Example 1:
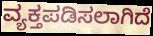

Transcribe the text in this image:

ವ್ಯಕ್ತಪಡಿಸಲಾಗಿದೆ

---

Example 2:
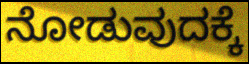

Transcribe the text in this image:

ನೋಡುವುದಕ್ಕೆ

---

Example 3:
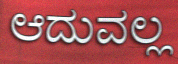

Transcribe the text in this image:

ಆದುವಲ್ಲ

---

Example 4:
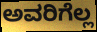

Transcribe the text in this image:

ಅವರಿಗೆಲ್ಲ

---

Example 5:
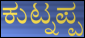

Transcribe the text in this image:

ಕುಟ್ನಪ್ಪ